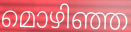
മൊഴിഞ്ഞ